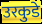
उरकुडे